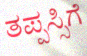
ತಪ್ಪಸ್ಸಿಗೆ